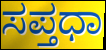
ಸಪ್ತಧಾ